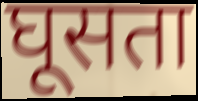
घूसता